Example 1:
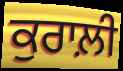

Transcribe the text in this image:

ਕੁਰਾਲ਼ੀ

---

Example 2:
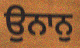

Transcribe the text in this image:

ਉਨਾਨੁ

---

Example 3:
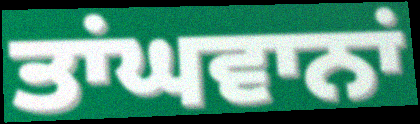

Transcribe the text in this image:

ਤਾਂਘਵਾਨਾਂ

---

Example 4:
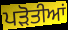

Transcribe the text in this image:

ਪੜੋਤੀਆਂ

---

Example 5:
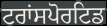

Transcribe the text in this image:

ਟਰਾਂਸਪੋਰਟਿਡ